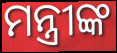
ମନ୍ତ୍ରୀଙ୍କ